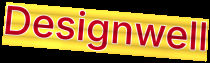
Designwell